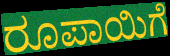
ರೂಪಾಯಿಗೆ